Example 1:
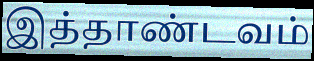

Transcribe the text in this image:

இத்தாண்டவம்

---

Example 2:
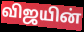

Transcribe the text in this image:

விஜயின்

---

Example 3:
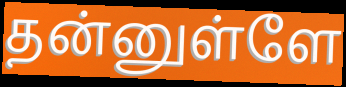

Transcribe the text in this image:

தன்னுள்ளே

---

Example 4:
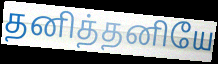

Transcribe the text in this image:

தனித்தனியே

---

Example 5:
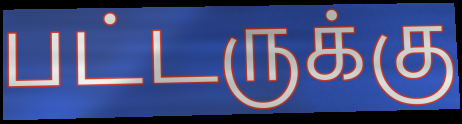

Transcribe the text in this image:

பட்டருக்கு